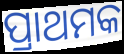
ପ୍ରାଥମକ